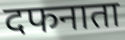
दफनाता